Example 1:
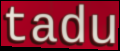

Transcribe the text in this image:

tadu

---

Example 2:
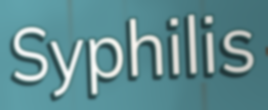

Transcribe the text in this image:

Syphilis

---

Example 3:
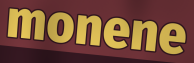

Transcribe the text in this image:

monene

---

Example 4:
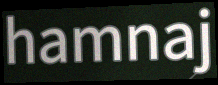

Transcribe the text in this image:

hamnaj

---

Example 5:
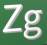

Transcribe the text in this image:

Zg